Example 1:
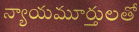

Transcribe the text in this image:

న్యాయమూర్తులతో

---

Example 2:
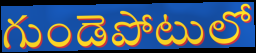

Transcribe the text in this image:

గుండెపోటులో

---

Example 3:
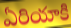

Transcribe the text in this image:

ఏరియాకి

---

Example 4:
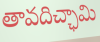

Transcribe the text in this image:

తావదిచ్ఛామి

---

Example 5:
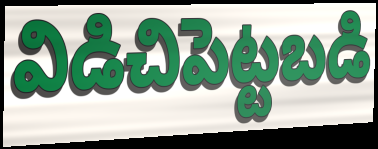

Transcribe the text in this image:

విడిచిపెట్టబడి